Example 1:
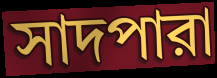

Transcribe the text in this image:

সাদপারা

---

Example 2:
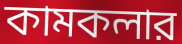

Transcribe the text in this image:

কামকলার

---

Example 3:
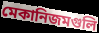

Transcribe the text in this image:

মেকানিজমগুলি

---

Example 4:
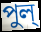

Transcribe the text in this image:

পুল্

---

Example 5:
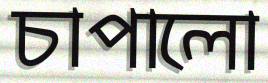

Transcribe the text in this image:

চাপালো